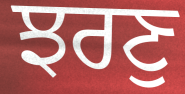
ਝਰਣੁ